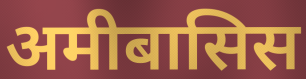
अमीबासिस